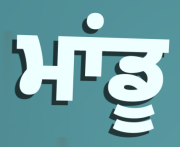
ਮਾਂਡੂ